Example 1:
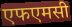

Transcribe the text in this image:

एफएमसी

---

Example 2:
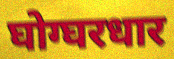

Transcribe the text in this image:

घोग्घरधार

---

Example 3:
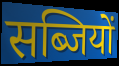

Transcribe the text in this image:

सब्जियों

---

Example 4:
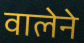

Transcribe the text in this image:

वालेने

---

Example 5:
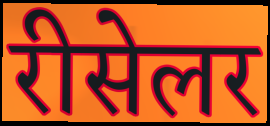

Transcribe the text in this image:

रीसेलर